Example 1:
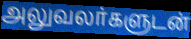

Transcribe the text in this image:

அலுவலர்களுடன்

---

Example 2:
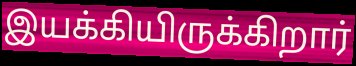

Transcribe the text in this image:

இயக்கியிருக்கிறார்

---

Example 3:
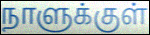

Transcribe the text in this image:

நாளுக்குள்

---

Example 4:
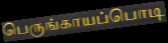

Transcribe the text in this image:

பெருங்காயப்பொடி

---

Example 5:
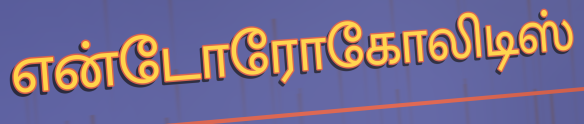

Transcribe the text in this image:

என்டோரோகோலிடிஸ்